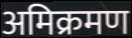
अमिक्रमण